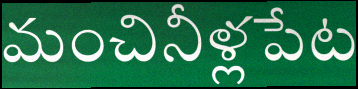
మంచినీళ్లపేట